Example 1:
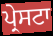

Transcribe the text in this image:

ਪ੍ਰੇਸਟਾ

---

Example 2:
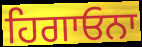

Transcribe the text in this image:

ਹਿਗਾਓਨਾ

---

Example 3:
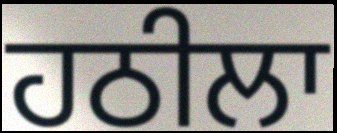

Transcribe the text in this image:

ਹਠੀਲਾ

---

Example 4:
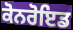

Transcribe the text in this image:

ਕੋਨਰੋਇਡ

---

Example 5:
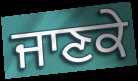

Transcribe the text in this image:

ਜਾਣਕੇ